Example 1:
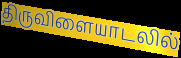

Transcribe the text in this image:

திருவிளையாடலில்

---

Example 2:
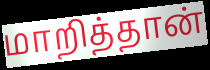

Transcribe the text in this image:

மாறித்தான்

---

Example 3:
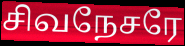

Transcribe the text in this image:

சிவநேசரே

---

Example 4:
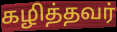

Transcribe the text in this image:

கழித்தவர்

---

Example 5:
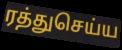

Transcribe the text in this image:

ரத்துசெய்ய